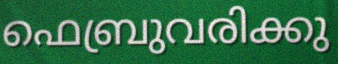
ഫെബ്രുവരിക്കു